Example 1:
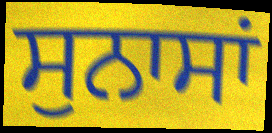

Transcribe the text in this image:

ਸੁਨਾਸਾਂ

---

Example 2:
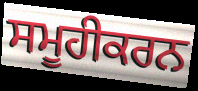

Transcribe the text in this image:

ਸਮੂਹੀਕਰਨ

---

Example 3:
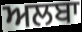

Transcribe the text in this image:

ਅਲਬਾ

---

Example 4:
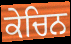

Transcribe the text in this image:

ਕੇਚਿਨ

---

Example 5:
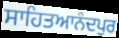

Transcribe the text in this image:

ਸਾਹਿਤਆਨੰਦਪੁਰ